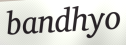
bandhyo